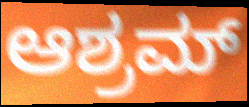
ಆಶ್ರಮ್